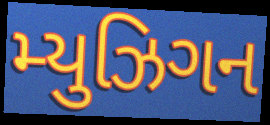
મ્યુઝિગન